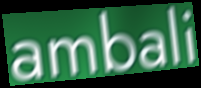
ambali